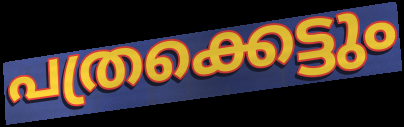
പത്രക്കെട്ടും